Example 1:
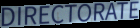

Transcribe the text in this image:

DIRECTORATE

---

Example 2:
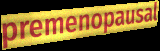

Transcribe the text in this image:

premenopausal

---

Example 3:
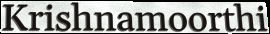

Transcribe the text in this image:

Krishnamoorthi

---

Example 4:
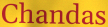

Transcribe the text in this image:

Chandas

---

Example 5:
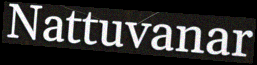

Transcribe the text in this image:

Nattuvanar